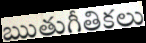
ఋతుగీతికలు